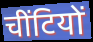
चींटियों